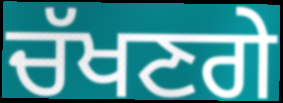
ਚੱਖਣਗੇ